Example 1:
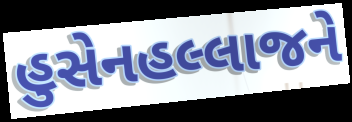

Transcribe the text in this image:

હુસેનહલ્લાજને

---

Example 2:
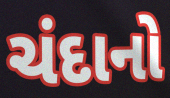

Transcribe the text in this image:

ચંદાનો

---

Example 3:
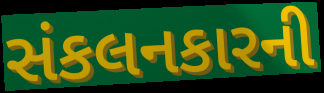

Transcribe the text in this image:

સંકલનકારની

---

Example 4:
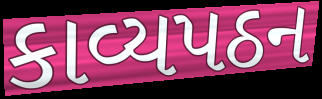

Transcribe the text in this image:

કાવ્યપઠન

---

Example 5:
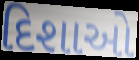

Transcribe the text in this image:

દિશાઓ